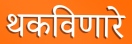
थकविणारे